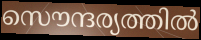
സൌന്ദര്യത്തിൽ